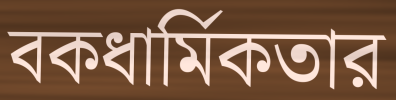
বকধার্মিকতার